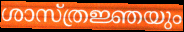
ശാസ്ത്രജ്ഞയും